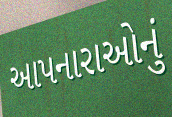
આપનારાઓનું